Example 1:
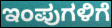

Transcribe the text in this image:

ಇಂಪುಗಳಿಗೆ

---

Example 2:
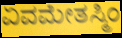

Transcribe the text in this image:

ಏವಮೇತಸ್ಮಿಂ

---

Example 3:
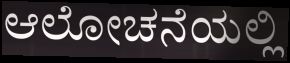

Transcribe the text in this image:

ಆಲೋಚನೆಯಲ್ಲಿ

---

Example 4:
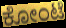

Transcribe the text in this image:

ಕೋಂಟೆ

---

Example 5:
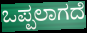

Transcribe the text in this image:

ಒಪ್ಪಲಾಗದೆ